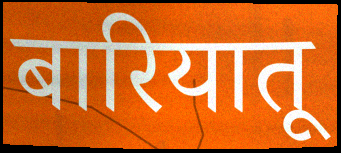
बारियातू